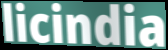
licindia